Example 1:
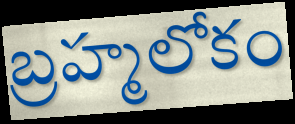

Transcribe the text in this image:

బ్రహ్మలోకం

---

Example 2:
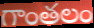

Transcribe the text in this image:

గాంతలం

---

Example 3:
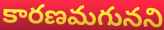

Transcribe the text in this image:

కారణమగునని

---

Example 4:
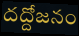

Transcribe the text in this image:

దద్దోజనం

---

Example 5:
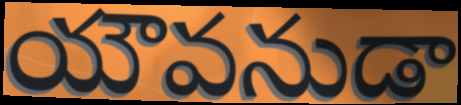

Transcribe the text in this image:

యౌవనుడా